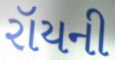
રૉયની